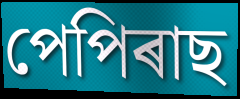
পেপিৰাছ